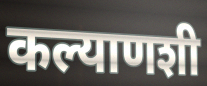
कल्याणशी